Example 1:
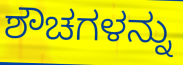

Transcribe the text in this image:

ಶೌಚಗಳನ್ನು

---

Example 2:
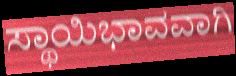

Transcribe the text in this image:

ಸ್ಥಾಯಿಭಾವವಾಗಿ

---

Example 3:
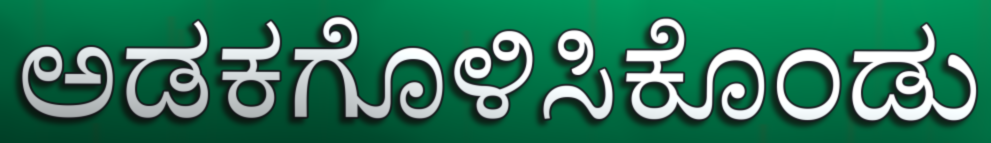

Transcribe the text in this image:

ಅಡಕಗೊಳಿಸಿಕೊಂಡು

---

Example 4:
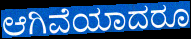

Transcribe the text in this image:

ಆಗಿವೆಯಾದರೂ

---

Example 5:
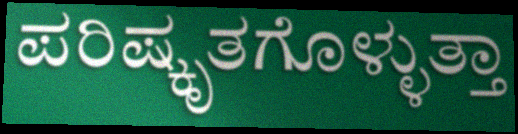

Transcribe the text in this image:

ಪರಿಷ್ಕೃತಗೊಳ್ಳುತ್ತಾ